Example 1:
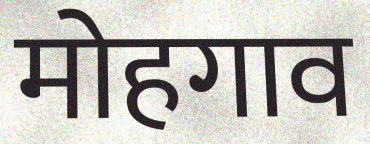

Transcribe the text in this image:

मोहगाव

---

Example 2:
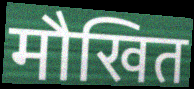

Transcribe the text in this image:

मौखित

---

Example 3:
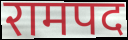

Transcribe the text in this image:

रामपद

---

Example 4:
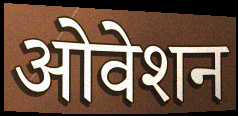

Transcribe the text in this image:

ओवेशन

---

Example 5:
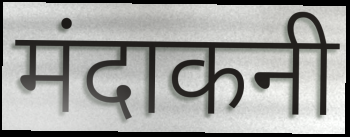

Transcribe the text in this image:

मंदाकनी